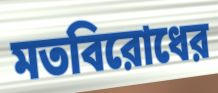
মতবিরোধের